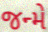
જન્મે